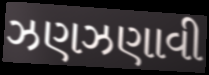
ઝણઝણાવી